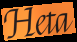
Heta